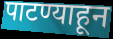
पाटण्याहून